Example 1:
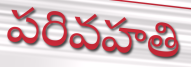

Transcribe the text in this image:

పరివహతి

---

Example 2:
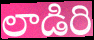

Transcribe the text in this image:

లాడిరి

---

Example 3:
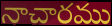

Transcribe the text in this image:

నాచారము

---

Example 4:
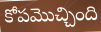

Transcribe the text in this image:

కోపమొచ్చింది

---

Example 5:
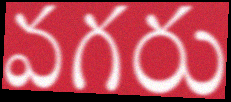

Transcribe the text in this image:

వగరు